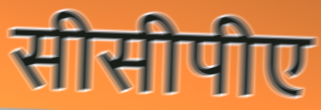
सीसीपीए